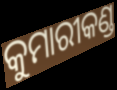
କୁମାରୀକଣ୍ଡ